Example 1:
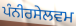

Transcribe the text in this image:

ਪੰਨੀਰਸੇਲਵਮ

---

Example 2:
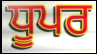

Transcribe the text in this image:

ਧੂਪਰ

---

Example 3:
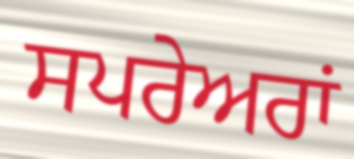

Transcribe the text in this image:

ਸਪਰੇਅਰਾਂ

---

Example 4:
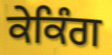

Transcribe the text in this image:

ਕੇਕਿੰਗ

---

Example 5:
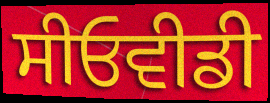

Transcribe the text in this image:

ਸੀਓਵੀਡੀ